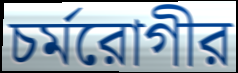
চর্মরোগীর